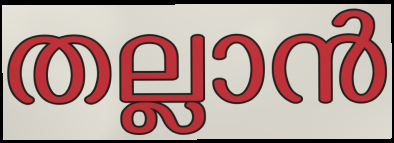
തല്ലാൻ